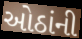
ઓઠાંની